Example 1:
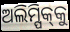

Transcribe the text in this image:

ଅଲିମ୍ପିକ୍‌କୁ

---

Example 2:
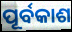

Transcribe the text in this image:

ପୂର୍ବକାଶ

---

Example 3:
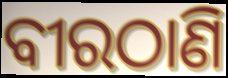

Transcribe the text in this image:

ବୀରଠାଣି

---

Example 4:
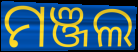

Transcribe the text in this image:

ମଞ୍ଜଲ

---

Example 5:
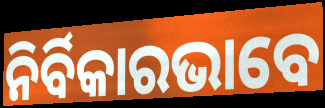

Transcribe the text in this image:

ନିର୍ବିକାରଭାବେ